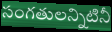
సంగతులన్నిటినీ